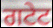
ਗਟੇਟ